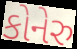
કોનેરુ